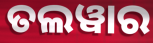
ତଲୱାର